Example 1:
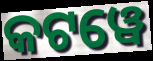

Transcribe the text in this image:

କଟୱେ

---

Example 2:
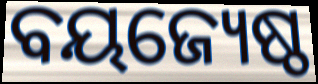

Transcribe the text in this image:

ବୟଜ୍ୟେଷ୍ଠ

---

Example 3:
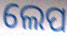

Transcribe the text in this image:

ଲେପ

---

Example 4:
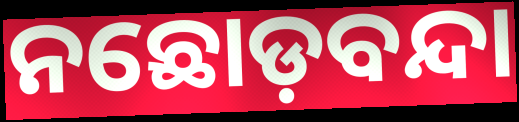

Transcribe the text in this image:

ନଛୋଡ଼ବନ୍ଦା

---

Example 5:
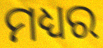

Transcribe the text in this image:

ମଧ୍ଯର